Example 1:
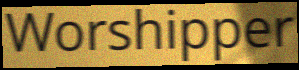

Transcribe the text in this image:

Worshipper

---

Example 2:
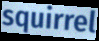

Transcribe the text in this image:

squirrel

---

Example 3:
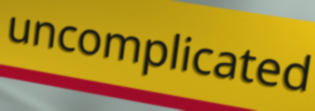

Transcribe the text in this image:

uncomplicated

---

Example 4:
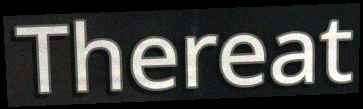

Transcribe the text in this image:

Thereat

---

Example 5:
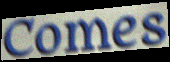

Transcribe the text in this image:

Comes